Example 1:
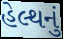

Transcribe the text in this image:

હેલ્થનું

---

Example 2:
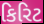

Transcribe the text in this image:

કિરિટ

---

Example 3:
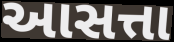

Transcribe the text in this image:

આસત્તા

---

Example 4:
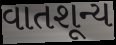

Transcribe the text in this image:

વાતશૂન્ય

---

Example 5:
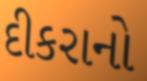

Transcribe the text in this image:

દીકરાનો